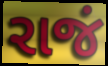
રાજં